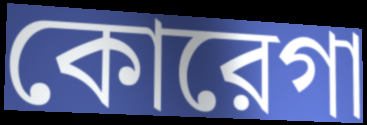
কোরেগা